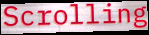
Scrolling